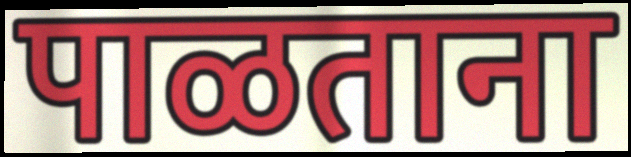
पाळताना